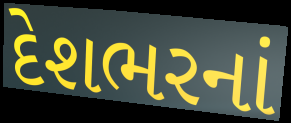
દેશભરનાં